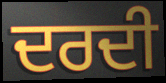
ਦਰਦੀ